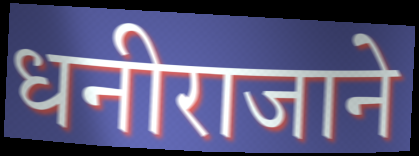
धनीराजाने